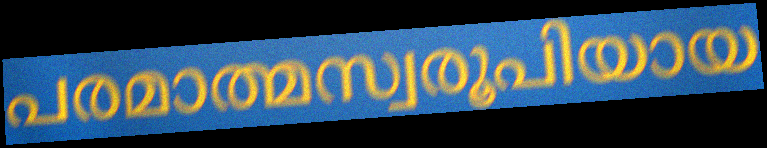
പരമാത്മസ്വരൂപിയായ